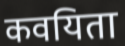
कवयिता